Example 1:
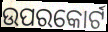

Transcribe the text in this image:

ଉପରକୋର୍ଟ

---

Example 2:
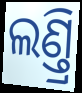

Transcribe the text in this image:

ଲଣ୍ତ୍ରି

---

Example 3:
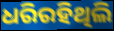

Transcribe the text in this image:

ଧରିରହିଥିଲି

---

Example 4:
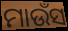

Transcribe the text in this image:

ମାଉଁସ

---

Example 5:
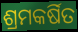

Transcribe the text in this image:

ଶ୍ରମକର୍ଷିତ